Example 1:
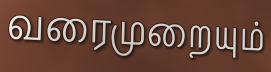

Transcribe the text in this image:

வரைமுறையும்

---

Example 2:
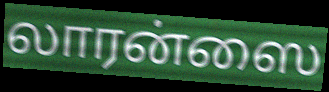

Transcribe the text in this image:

லாரன்ஸை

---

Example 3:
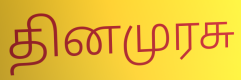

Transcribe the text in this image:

தினமுரசு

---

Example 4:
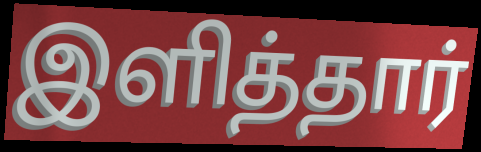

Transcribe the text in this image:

இளித்தார்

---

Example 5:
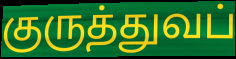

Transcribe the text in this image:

குருத்துவப்